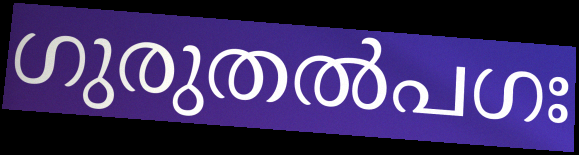
ഗുരുതൽപഗഃ